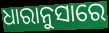
ଧାରାନୁସାରେ